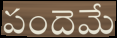
పందెమే